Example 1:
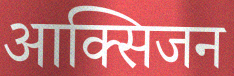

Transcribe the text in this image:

आक्सिजन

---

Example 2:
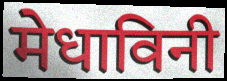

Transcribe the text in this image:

मेधाविनी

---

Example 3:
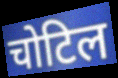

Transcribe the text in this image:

चोटिल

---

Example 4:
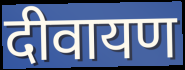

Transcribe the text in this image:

दीवायण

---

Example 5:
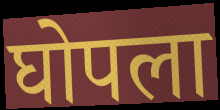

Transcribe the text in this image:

घोपला